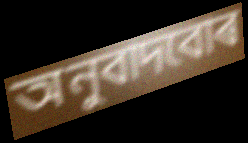
অনুবাদবোৰ